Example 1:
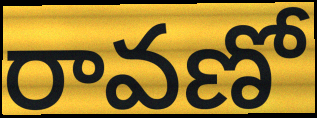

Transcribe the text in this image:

రావణో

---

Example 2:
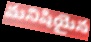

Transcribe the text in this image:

మనిషియైన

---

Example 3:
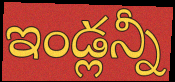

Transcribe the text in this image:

ఇండ్లన్నీ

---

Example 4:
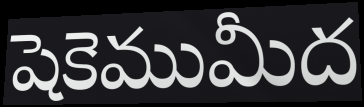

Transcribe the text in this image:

షెకెముమీద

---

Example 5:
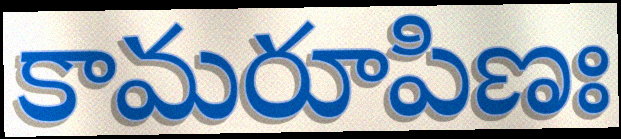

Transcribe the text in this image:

కామరూపిణః